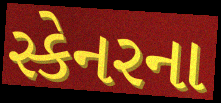
સ્કેનરના